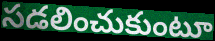
సడలించుకుంటూ